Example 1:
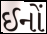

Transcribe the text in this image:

ઈનોં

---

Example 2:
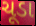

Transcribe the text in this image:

ચૂડા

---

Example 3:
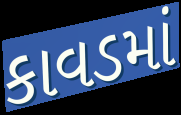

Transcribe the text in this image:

કાવડમાં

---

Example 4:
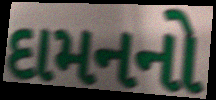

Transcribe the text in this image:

દામનનો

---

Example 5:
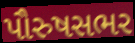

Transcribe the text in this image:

પૌરુષસભર